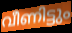
വീണിട്ടും